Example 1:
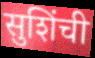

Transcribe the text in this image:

सुशिंची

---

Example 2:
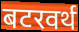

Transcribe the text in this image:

बटरवर्थ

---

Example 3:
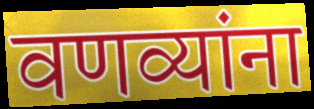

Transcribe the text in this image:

वणव्यांना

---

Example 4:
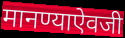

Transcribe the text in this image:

मानण्याऐवजी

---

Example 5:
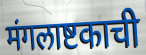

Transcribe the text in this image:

मंगलाष्टकाची